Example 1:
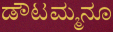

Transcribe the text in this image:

ಡೌಟಮ್ಮನೂ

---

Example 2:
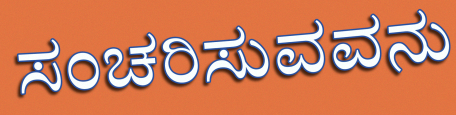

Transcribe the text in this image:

ಸಂಚರಿಸುವವನು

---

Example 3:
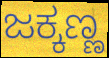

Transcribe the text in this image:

ಜಕ್ಕಣ್ಣ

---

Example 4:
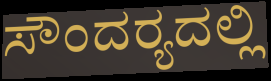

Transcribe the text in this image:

ಸೌಂದರ‍್ಯದಲ್ಲಿ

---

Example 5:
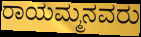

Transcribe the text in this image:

ರಾಯಮ್ಮನವರು